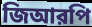
জিআরপি